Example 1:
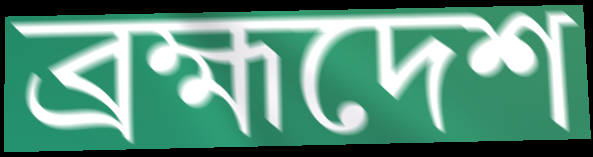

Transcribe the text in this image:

ব্রহ্মদেশ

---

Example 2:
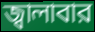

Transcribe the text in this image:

জ্বালাবার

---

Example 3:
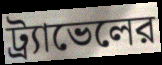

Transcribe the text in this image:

ট্র্যাভেলের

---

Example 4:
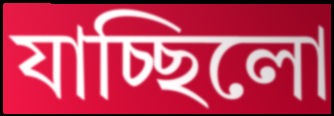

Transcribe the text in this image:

যাচ্ছিলো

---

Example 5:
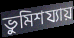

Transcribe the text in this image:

ভুমিশয্যায়